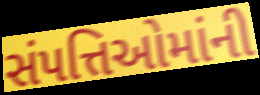
સંપત્તિઓમાંની